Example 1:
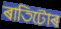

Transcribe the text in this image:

ৰাতিটোৰ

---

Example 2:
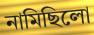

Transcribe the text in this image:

নামিছিলো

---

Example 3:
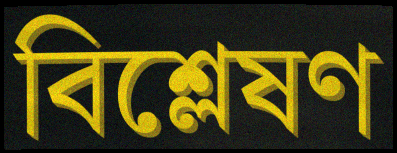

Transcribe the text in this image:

বিশ্লেষণ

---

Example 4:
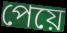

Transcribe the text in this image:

পেয়ে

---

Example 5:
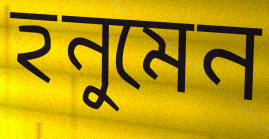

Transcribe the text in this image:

হনুমেন